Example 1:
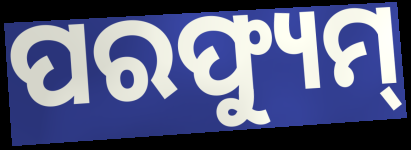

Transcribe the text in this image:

ପରଫ୍ୟୁମ୍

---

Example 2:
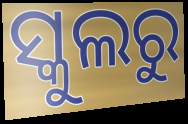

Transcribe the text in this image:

ସ୍କୁଲରୁ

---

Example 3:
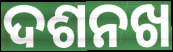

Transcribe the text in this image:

ଦଶନଖ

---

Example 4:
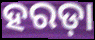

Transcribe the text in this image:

ହରଡ଼ା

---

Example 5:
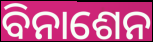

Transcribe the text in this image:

ବିନାଶେନ